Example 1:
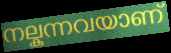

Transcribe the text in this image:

നല്കുന്നവയാണ്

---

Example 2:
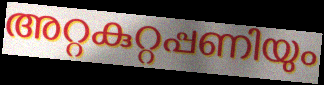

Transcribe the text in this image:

അറ്റകുറ്റപ്പണിയും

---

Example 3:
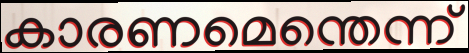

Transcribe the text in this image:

കാരണമെന്തെന്ന്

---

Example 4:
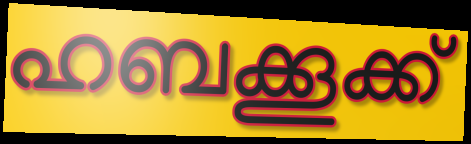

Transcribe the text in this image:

ഹബക്കൂക്ക്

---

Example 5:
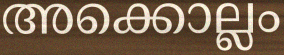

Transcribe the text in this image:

അക്കൊല്ലം